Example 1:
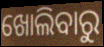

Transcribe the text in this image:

ଖୋଲିବାରୁ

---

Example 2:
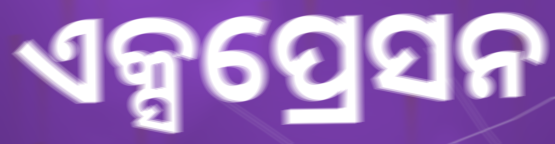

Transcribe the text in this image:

ଏକ୍ସପ୍ରେସନ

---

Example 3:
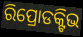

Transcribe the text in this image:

ରିପ୍ରୋଡକ୍ଟିଭ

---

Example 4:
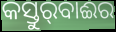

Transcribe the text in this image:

କସ୍ତୁର୍‍ବାଈର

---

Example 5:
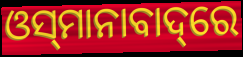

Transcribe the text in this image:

ଓସ୍‌ମାନାବାଦ୍‌ରେ